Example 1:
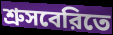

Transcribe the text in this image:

শ্রুসবেরিতে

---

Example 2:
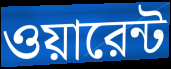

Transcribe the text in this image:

ওয়ারেন্ট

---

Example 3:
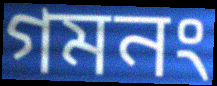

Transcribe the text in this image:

গমনং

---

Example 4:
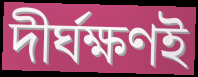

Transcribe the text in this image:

দীর্ঘক্ষণই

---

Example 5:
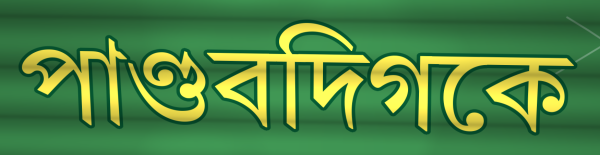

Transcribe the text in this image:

পাণ্ডবদিগকে